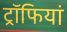
ट्रॉफियां